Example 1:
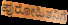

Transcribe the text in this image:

ಪುರೋಹಿತನಿಗೆ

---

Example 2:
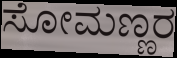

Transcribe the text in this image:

ಸೋಮಣ್ಣರ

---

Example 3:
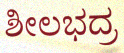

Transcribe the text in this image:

ಶೀಲಭದ್ರ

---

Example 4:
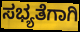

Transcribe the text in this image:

ಸಭ್ಯತೆಗಾಗಿ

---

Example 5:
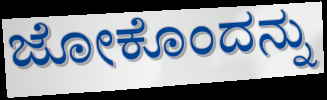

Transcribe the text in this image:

ಜೋಕೊಂದನ್ನು